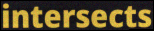
intersects